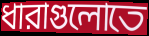
ধারাগুলোতে